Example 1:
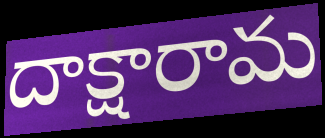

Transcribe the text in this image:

దాక్షారామ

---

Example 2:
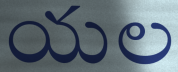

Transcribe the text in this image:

యల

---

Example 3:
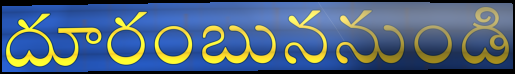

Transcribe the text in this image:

దూరంబుననుండి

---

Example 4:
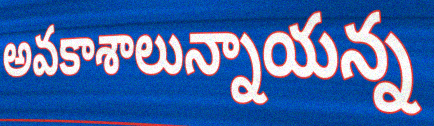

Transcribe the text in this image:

అవకాశాలున్నాయన్న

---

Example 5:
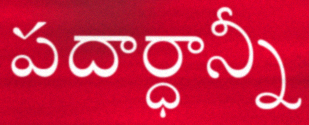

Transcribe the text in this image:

పదార్ధాన్నీ